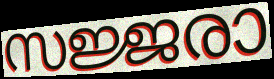
സജ്ജരാ